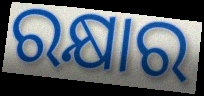
ରକ୍ଷାର